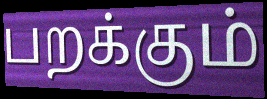
பறக்கும்